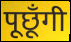
पूछूँगी